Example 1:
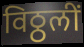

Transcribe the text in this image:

विठ्ठलीं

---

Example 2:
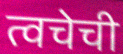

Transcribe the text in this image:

त्वचेची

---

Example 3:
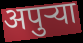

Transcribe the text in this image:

अपुर्‍या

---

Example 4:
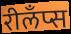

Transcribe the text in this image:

रीलँप्स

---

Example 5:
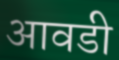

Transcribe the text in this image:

आवडी